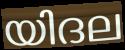
യിദല